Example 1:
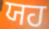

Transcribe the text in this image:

ਯਹ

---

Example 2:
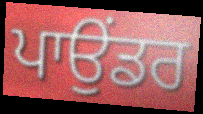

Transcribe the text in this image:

ਪਾਉਂਡਰ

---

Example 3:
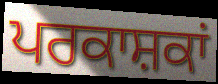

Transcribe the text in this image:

ਪਰਕਾਸ਼ਕਾਂ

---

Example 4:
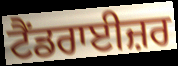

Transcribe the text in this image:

ਟੈਂਡਰਾਈਜ਼ਰ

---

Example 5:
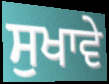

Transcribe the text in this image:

ਸੁਖਾਵੇ